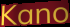
Kano